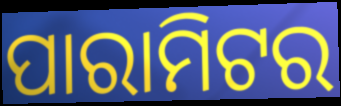
ପାରାମିଟର